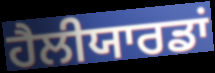
ਹੈਲੀਯਾਰਡਾਂ